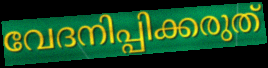
വേദനിപ്പിക്കരുത്